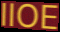
IIOE